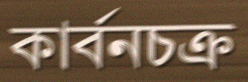
কার্বনচক্র